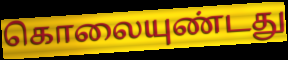
கொலையுண்டது